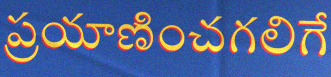
ప్రయాణించగలిగే